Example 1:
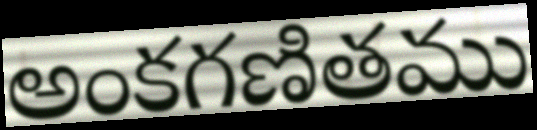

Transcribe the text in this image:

అంకగణితము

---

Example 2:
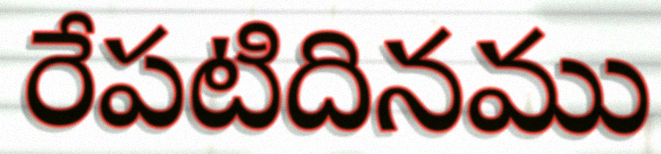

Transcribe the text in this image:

రేపటిదినము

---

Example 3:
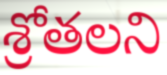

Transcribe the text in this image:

శ్రోతలని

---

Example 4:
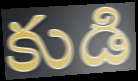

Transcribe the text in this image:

కుడి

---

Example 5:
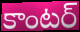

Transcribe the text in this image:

కాంటర్